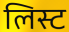
लिस्ट